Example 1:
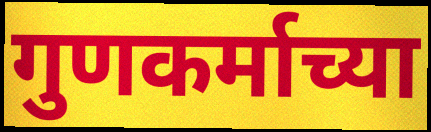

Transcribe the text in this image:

गुणकर्माच्या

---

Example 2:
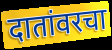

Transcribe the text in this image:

दातांवरचा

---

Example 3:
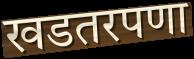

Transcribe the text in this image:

खडतरपणा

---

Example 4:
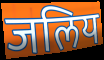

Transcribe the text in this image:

जलिय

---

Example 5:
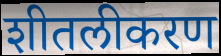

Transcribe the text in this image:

शीतलीकरण